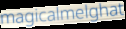
magicalmelghat